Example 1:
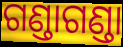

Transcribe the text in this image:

ଗଣ୍ଡାଗଣ୍ଡା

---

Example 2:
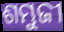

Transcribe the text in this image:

ଶମ୍ଭୁଜୀ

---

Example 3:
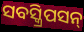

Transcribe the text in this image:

ସବସ୍କ୍ରିପସନ୍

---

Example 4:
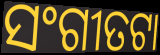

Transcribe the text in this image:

ସଂଗୀତଟା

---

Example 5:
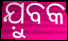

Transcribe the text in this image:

ଯ଼ୁବକ